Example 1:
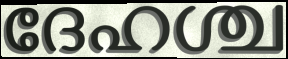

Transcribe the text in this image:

ദേഹശ്ച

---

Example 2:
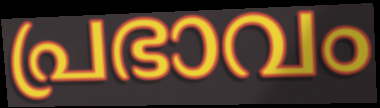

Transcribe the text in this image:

പ്രഭാവം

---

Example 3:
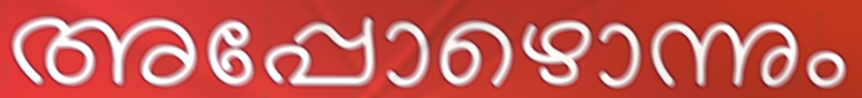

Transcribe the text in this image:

അപ്പോഴൊന്നും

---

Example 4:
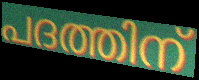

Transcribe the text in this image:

പദത്തിന്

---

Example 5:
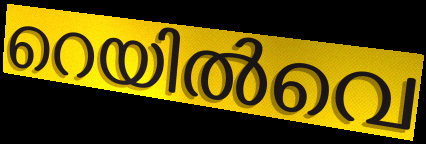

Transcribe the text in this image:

റെയിൽവെ